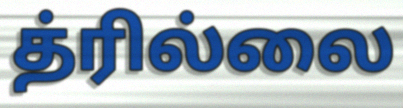
த்ரில்லை